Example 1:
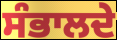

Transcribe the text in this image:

ਸੰਭਾਲਦੇ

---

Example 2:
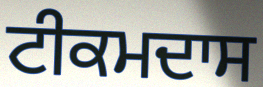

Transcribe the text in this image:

ਟੀਕਮਦਾਸ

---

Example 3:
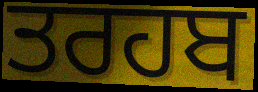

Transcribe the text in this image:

ਤਰਹਬ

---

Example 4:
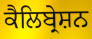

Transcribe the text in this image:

ਕੈਲਿਬ੍ਰੇਸ਼ਨ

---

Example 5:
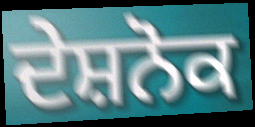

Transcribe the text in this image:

ਦੇਸ਼ਨੋਕ